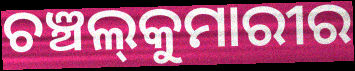
ଚଞ୍ଚଲ୍‍କୁମାରୀର